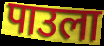
पाउला